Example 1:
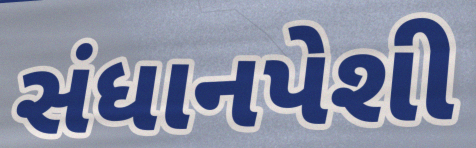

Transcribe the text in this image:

સંધાનપેશી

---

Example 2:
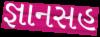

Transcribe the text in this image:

જ્ઞાનસહ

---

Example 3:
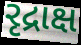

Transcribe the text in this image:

રૃદ્રાક્ષ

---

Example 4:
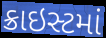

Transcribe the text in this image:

ક્રાઇસ્ટમાં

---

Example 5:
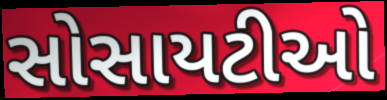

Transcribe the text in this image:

સોસાયટીઓ